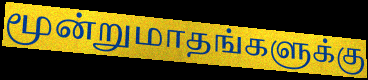
மூன்றுமாதங்களுக்கு